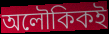
অলৌকিকই